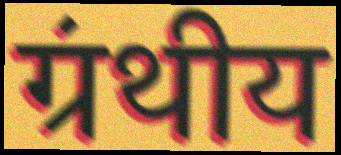
ग्रंथीय